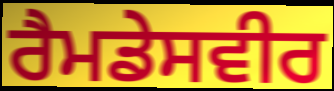
ਰੈਮਡੇਸਵੀਰ